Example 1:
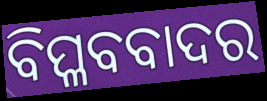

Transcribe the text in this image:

ବିପ୍ଳବବାଦର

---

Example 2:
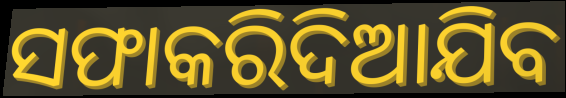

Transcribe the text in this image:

ସଫାକରିଦିଆଯିବ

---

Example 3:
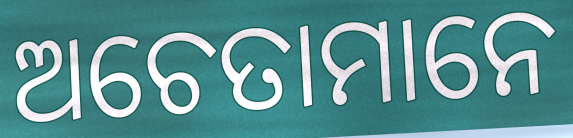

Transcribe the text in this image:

ଅଚେତାମାନେ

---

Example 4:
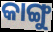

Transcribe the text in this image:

କାଙ୍ଗୁ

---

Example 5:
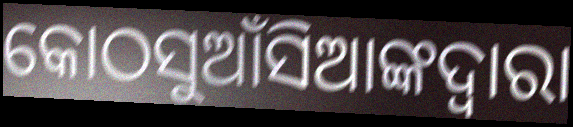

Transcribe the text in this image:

କୋଠସୁଆଁସିଆଙ୍କଦ୍ବାରା